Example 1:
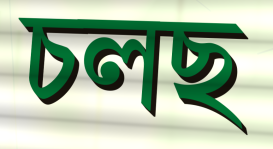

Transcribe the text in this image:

চলছ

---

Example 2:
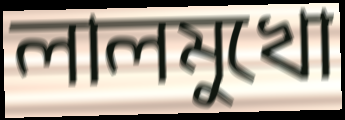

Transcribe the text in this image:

লালমুখো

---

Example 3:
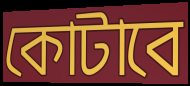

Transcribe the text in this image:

কোটাবে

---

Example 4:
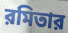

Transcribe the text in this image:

রমিতার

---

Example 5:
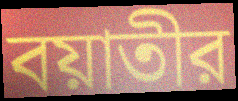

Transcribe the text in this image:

বয়াতীর